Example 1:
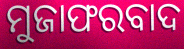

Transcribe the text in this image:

ମୁଜାଫରବାଦ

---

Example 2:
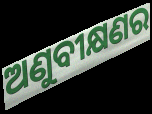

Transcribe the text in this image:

ଅଣୁବୀକ୍ଷଣର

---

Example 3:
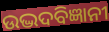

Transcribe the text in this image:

ଉଦ୍ଭଦବିଜ୍ଞାନୀ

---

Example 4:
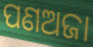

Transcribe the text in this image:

ପଣଅଜା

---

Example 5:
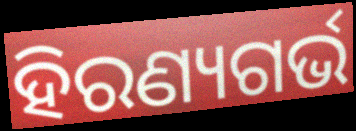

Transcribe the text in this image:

ହିରଣ୍ୟଗର୍ଭ